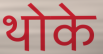
थोके